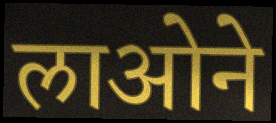
लाओने